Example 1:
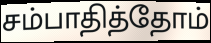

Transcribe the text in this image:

சம்பாதித்தோம்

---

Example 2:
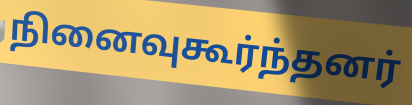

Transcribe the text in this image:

நினைவுகூர்ந்தனர்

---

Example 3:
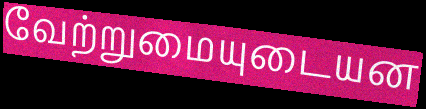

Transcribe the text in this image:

வேற்றுமையுடையன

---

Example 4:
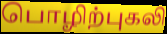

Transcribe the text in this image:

பொழிற்புகலி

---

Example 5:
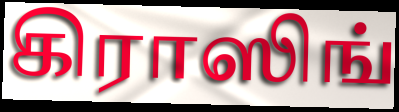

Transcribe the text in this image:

கிராஸிங்